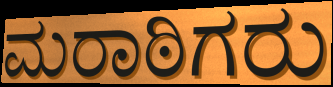
ಮರಾಠಿಗರು